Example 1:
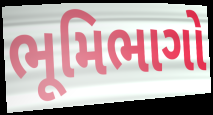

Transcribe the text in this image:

ભૂમિભાગો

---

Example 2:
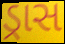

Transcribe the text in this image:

ડ્રાસ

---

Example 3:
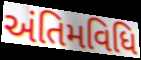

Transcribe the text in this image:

અંતિમવિધિ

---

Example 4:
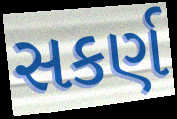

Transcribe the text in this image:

સકર્ણ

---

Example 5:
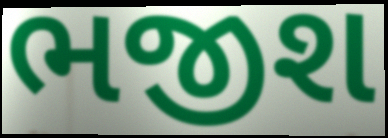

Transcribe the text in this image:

ભજીશ